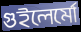
গুইলের্মো